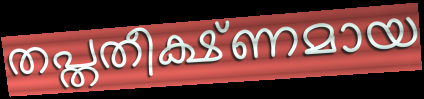
തപ്തതീക്ഷ്ണമായ